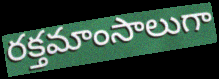
రక్తమాంసాలుగా